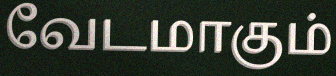
வேடமாகும்